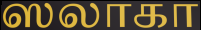
ஸலாகா